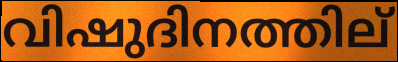
വിഷുദിനത്തില്